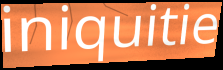
iniquitie